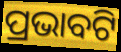
ପ୍ରଭାବଟି